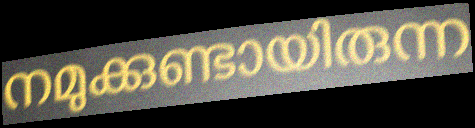
നമുക്കുണ്ടായിരുന്ന